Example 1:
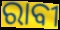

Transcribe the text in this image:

ରାବୀ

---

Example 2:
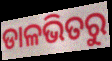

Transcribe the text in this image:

ଡାଳଭିତରୁ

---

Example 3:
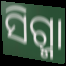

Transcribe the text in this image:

ସିଗ୍ମା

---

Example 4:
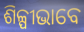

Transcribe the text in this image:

ଶିଳ୍ପୀଭାବେ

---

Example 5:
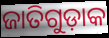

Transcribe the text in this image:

ଜାତିଗୁଡ଼ାକ